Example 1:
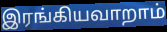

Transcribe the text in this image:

இரங்கியவாறாம்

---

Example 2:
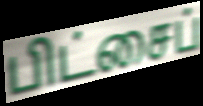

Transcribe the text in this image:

பிட்சைப்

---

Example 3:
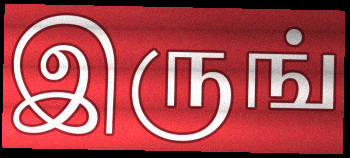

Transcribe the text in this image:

இருங்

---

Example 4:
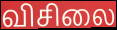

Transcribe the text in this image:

விசிலை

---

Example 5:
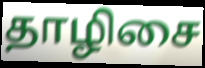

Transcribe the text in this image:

தாழிசை